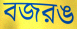
বজরঙ